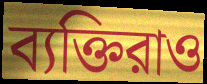
ব্যক্তিরাও